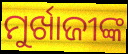
ମୁର୍ଖାଜୀଙ୍କ